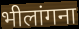
भीलांगना